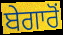
ਬੇਗਾਰੋਂ